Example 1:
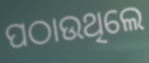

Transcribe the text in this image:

ପଠାଉଥିଲେ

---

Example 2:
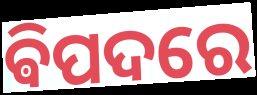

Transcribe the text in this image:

ଵିପଦରେ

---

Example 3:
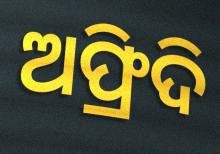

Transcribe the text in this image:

ଅଫ୍ରିଦି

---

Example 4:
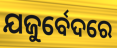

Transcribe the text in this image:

ଯଜୁର୍ବେଦରେ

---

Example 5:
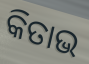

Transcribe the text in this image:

କିତାଭ